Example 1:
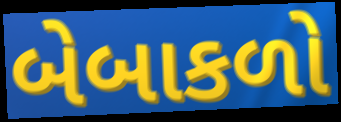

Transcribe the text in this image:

બેબાકળો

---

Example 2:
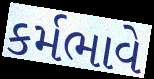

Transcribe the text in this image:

કર્મભાવે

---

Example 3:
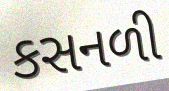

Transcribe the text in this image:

કસનળી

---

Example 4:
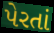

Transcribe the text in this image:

પેરતાં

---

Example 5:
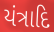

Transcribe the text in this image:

યંત્રાદિ